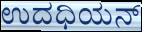
ಉದಧಿಯನ್